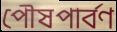
পৌষপার্বণ